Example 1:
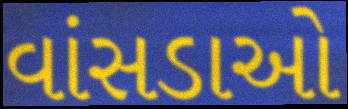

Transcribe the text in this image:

વાંસડાઓ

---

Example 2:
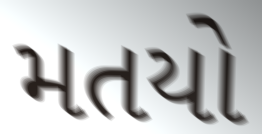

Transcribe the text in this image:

મતયો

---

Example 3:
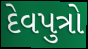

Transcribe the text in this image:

દેવપુત્રો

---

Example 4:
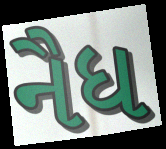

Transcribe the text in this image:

નૈધ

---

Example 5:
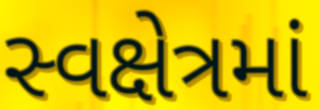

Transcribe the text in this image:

સ્વક્ષેત્રમાં